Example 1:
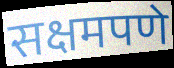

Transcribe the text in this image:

सक्षमपणे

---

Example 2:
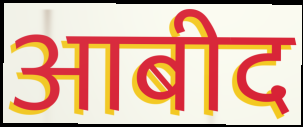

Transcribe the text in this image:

आबीद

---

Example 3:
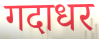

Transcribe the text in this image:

गदाधर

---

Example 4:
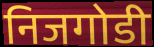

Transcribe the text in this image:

निजगोडी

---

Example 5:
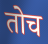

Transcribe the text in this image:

तोच